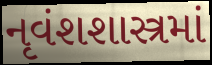
નૃવંશશાસ્ત્રમાં